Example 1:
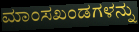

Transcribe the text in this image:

ಮಾಂಸಖಂಡಗಳನ್ನು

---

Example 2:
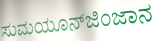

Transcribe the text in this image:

ಸುಮಯೂನ್‍ಜಿಂಜಾನ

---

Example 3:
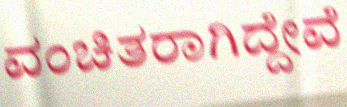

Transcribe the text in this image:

ವಂಚಿತರಾಗಿದ್ದೇವೆ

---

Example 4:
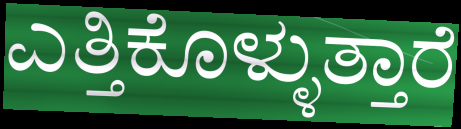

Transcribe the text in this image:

ಎತ್ತಿಕೊಳ್ಳುತ್ತಾರೆ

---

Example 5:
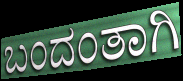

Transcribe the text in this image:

ಬಂದಂತಾಗಿ